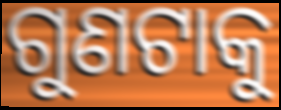
ଗୁଣଟାକୁ